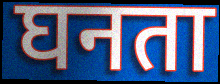
घनता